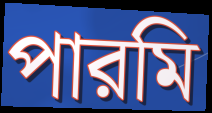
পারমি